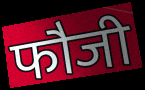
फौजी